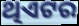
ଥିଏଟର